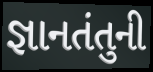
જ્ઞાનતંતુની